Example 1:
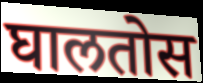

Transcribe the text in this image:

घालतोस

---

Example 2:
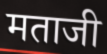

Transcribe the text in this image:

मताजी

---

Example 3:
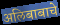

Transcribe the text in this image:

अलिबाबाचे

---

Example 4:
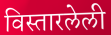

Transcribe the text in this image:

विस्तारलेली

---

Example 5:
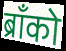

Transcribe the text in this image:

ब्राँको